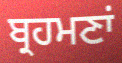
ਬ੍ਰਹਮਣਾਂ